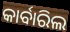
କାର୍ବାରିଲ